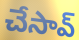
చేసావ్